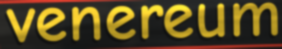
venereum